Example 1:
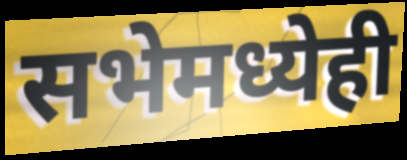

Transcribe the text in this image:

सभेमध्येही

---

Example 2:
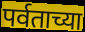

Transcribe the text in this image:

पर्वताच्या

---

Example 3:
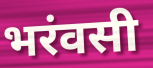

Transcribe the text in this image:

भरंवसी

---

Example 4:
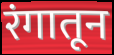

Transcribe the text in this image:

रंगातून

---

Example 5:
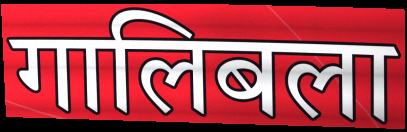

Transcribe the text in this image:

गालिबला